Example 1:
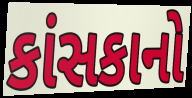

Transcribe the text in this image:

કાંસકાનો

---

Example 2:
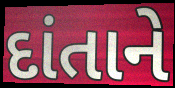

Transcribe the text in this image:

દાંતાને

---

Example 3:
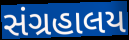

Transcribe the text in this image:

સંગ્રહાલય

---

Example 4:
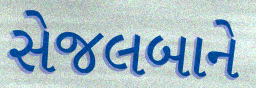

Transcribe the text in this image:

સેજલબાને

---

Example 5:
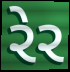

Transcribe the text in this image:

રેર